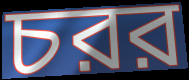
চরর